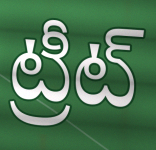
ట్రీట్